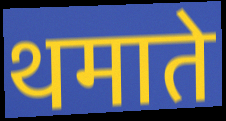
थमाते